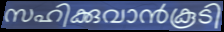
സഹിക്കുവാൻകൂടി